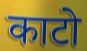
काटो